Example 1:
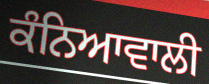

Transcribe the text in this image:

ਕੰਨਿਆਵਾਲੀ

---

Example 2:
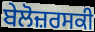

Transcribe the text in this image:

ਬੇਲੋਜ਼ਰਸਕੀ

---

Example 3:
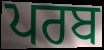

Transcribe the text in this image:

ਪਰਬ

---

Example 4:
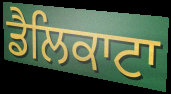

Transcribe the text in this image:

ਡੈਲਿਕਾਟਾ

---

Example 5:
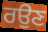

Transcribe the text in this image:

ਰਉਣ